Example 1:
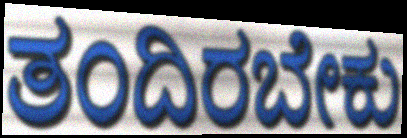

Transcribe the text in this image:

ತಂದಿರಬೇಕು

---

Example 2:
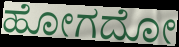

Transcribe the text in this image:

ಹೋಗದೋ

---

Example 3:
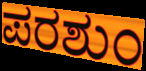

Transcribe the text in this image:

ಪರಶುಂ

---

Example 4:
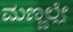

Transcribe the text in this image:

ಮಣ್ಣಲ್ಲೇ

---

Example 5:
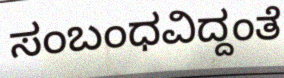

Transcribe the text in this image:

ಸಂಬಂಧವಿದ್ದಂತೆ